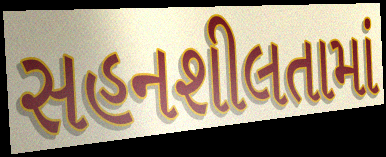
સહનશીલતામાં